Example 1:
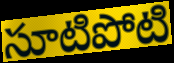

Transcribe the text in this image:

సూటిపోటి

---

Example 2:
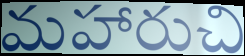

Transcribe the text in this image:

మహారుచి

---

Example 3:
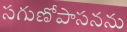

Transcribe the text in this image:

సగుణోపాసనను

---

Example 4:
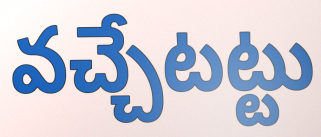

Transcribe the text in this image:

వచ్చేటట్టు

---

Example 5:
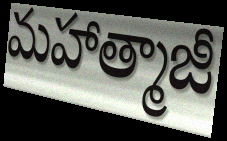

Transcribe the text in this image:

మహాత్మాజీ